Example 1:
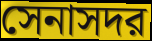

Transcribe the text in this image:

সেনাসদর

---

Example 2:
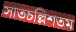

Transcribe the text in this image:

সাতচল্লিশতম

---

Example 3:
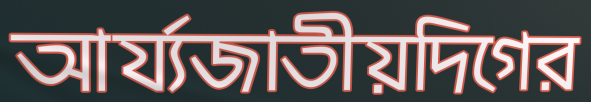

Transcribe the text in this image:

আর্য্যজাতীয়দিগের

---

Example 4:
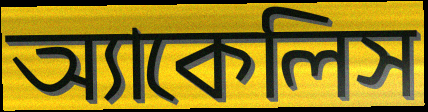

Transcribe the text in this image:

অ্যাকেলিস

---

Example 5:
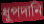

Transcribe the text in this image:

ধূপদানি